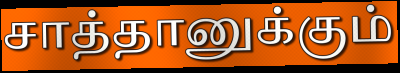
சாத்தானுக்கும்